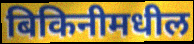
बिकिनीमधील